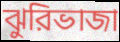
ঝুরিভাজা